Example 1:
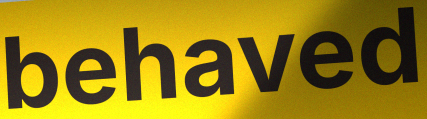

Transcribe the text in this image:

behaved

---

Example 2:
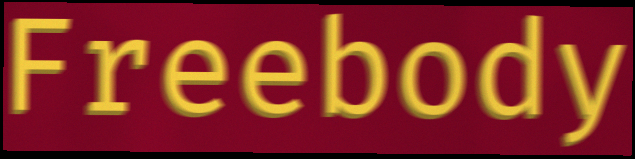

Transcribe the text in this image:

Freebody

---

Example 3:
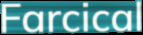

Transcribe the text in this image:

Farcical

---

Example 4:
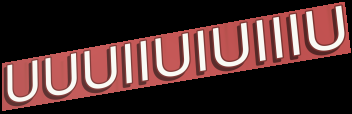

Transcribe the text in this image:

UUUIIUIUIIIU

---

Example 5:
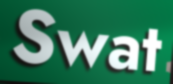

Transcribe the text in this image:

Swat